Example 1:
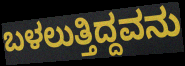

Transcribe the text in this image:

ಬಳಲುತ್ತಿದ್ದವನು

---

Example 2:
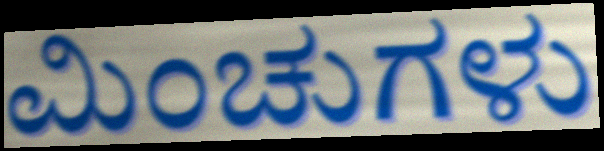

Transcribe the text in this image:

ಮಿಂಚುಗಳು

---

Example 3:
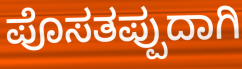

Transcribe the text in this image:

ಪೊಸತಪ್ಪುದಾಗಿ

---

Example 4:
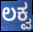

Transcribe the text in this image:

ಲಕ್ವ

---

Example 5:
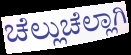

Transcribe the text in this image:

ಚೆಲ್ಲುಚೆಲ್ಲಾಗಿ